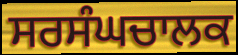
ਸਰਸੰਘਚਾਲਕ